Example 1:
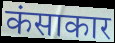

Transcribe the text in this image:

कंसाकार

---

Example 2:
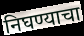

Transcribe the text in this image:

निघण्याचा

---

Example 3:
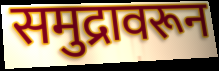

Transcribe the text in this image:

समुद्रावरून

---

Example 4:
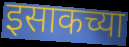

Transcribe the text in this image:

इसाकच्या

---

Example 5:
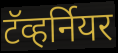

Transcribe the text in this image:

टॅव्हर्नियर